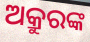
ଅକ୍ରୁରଙ୍କ